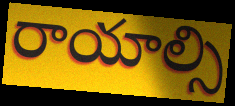
రాయాల్సి